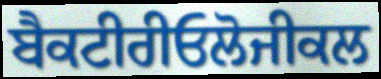
ਬੈਕਟੀਰੀਓਲੋਜੀਕਲ